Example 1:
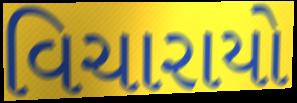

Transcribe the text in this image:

વિચારાયો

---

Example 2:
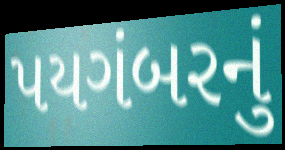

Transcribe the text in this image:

પયગંબરનું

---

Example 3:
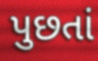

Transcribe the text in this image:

પુછતાં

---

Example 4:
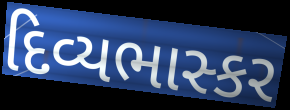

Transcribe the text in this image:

દિવ્યભાસ્કર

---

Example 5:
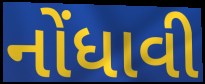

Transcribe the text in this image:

નોંધાવી